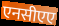
एनसीएए